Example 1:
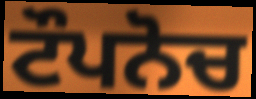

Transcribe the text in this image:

ਟੌਪਨੋਚ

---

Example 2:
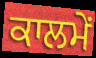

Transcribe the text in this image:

ਕਾਲਮੇਂ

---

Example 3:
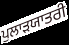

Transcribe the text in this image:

ਪੁਲਾੜਯਾਤਰੀ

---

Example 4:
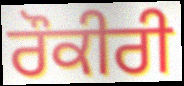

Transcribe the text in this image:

ਰੌਕੀਰੀ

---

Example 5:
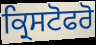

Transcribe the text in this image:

ਕ੍ਰਿਸਟੋਫਰੋ